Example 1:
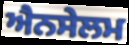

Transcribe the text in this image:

ਐਨਸੇਲਮ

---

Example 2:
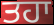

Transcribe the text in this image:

ਤਹਾ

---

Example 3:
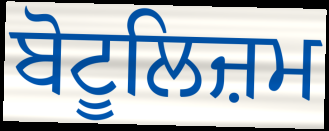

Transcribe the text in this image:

ਬੋਟੂਲਿਜ਼ਮ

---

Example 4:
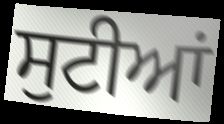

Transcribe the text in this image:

ਸੁਟੀਆਂ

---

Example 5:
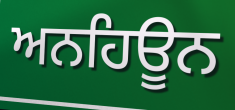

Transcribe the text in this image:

ਅਨਹਿਊਨ